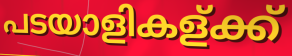
പടയാളികള്ക്ക്